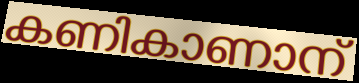
കണികാണാന്